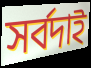
সর্বদাই